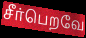
சீர்பெறவே